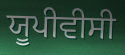
ਯੂਪੀਵੀਸੀ